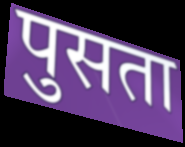
पुसता